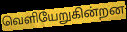
வெளியேறுகின்றன